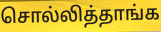
சொல்லித்தாங்க